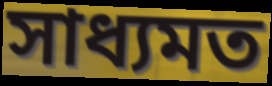
সাধ্যমত